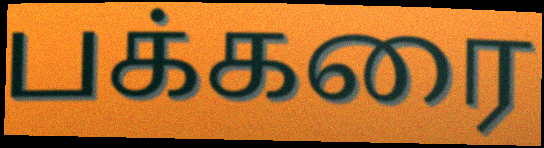
பக்கரை